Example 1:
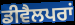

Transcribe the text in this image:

ਡੀਵੈਲਪਰਾਂ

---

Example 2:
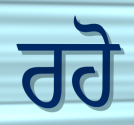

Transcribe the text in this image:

ਰਹੋ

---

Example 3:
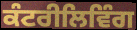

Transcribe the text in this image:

ਕੰਟਰੀਲਿਵਿੰਗ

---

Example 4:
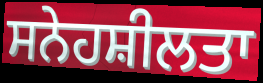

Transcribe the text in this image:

ਸਨੇਹਸ਼ੀਲਤਾ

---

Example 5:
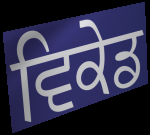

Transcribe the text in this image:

ਵਿਕੇਡ